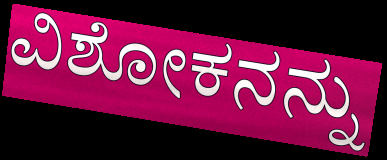
ವಿಶೋಕನನ್ನು